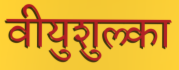
वीयुशुल्का